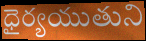
ధైర్యయుతుని